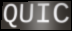
QUIC